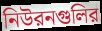
নিউরনগুলির